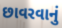
છાવરવાનું